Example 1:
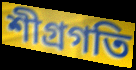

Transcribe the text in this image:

শীগ্রগতি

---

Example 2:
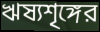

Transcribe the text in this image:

ঋষ্যশৃঙ্গের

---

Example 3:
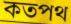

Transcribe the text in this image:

কতপথ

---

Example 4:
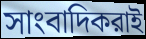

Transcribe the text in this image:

সাংবাদিকরাই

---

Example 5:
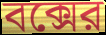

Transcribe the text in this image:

বক্সের